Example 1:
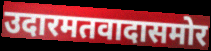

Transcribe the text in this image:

उदारमतवादासमोर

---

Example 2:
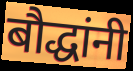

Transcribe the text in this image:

बौद्धांनी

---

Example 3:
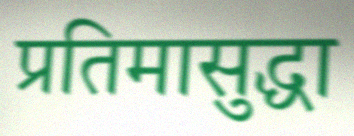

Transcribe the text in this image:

प्रतिमासुद्धा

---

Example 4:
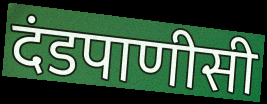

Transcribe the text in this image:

दंडपाणीसी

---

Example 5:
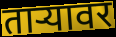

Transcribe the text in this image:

ताऱ्यावर